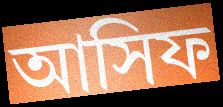
আসিফ